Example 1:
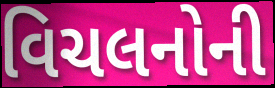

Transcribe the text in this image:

વિચલનોની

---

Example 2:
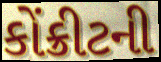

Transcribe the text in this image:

કોંક્રીટની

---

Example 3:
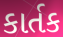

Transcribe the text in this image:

કાર્તક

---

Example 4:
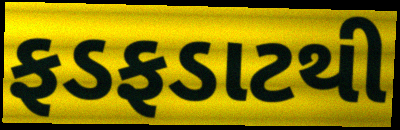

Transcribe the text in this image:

ફડફડાટથી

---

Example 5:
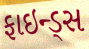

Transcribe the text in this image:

ફાઇન્ડ્સ